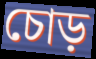
চোড়